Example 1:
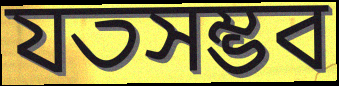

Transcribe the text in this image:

যতসম্ভব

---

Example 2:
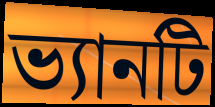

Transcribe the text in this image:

ভ্যানটি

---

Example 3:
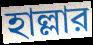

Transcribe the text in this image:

হাল্লার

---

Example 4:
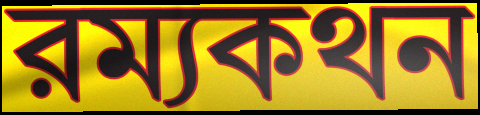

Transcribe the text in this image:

রম্যকথন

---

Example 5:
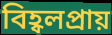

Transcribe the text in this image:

বিহ্বলপ্রায়